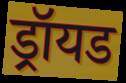
ड्रॉयड